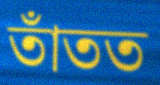
তাঁতত